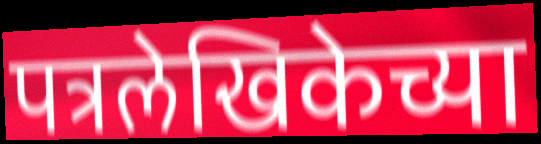
पत्रलेखिकेच्या